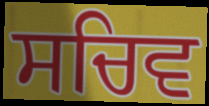
ਸਚਿਵ